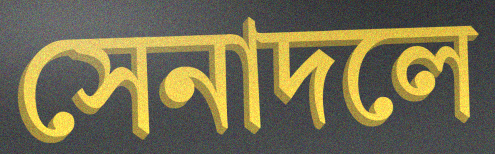
সেনাদলে